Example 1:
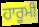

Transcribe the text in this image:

ਹਾਰੂਮੀ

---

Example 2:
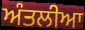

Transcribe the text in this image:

ਅੰਤਲੀਆ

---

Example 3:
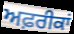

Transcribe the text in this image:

ਅਫ਼ਰੀਕਾਂ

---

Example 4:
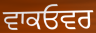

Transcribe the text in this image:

ਵਾਕਓਵਰ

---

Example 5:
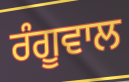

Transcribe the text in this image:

ਰੰਗੂਵਾਲ